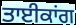
ਤਾਈਕਾਂਗ